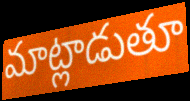
మాట్లాడుతూ